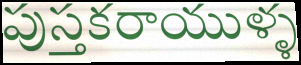
పుస్తకరాయుళ్ళ